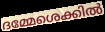
ദമ്മേശെക്കിൽ